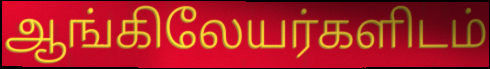
ஆங்கிலேயர்களிடம்